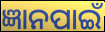
ଜ୍ଞାନପାଇଁ